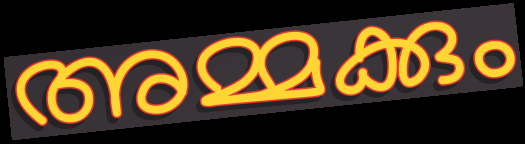
അമ്മക്കും